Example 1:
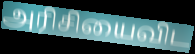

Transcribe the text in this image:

அரிசியைவிட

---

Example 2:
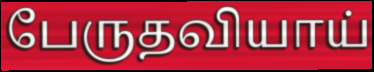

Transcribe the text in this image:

பேருதவியாய்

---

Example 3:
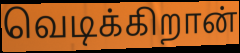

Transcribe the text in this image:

வெடிக்கிறான்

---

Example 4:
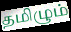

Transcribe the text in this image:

தமிழும்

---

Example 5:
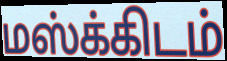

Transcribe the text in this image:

மஸ்க்கிடம்